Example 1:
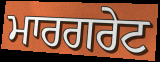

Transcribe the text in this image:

ਮਾਰਗਰੇਟ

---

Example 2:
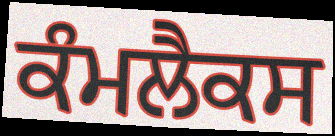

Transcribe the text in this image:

ਕੰਮਲੈਕਸ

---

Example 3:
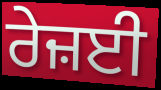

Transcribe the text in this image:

ਰੇਜ਼ਈ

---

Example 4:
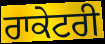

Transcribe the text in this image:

ਰਾਕੇਟਰੀ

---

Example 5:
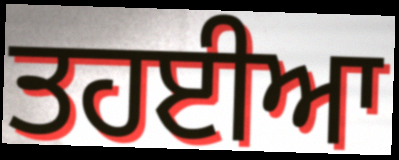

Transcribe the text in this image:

ਤਹਈਆ